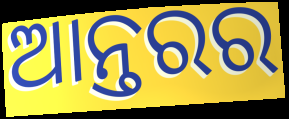
ଆନ୍ତରର